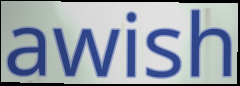
awish